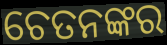
ଚେତନଙ୍କର